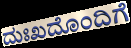
ದುಃಖದೊಂದಿಗೆ